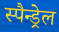
स्पैन्ड्रेल